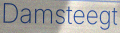
Damsteegt